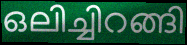
ഒലിച്ചിറങ്ങി